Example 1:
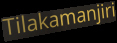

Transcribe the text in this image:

Tilakamanjiri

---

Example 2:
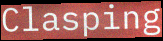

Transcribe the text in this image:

Clasping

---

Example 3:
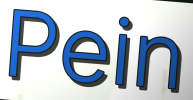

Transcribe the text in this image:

Pein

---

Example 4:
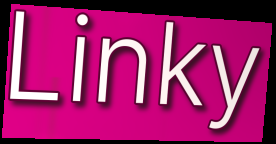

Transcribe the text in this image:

Linky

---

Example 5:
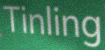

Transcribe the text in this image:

Tinling